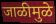
जाळीमुळे